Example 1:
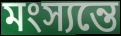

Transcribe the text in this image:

মংস্যন্তে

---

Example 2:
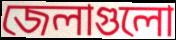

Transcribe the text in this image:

জেলাগুলো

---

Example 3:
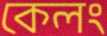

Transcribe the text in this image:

কেলং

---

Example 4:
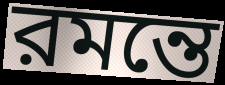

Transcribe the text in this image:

রমন্তে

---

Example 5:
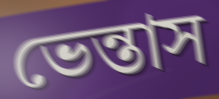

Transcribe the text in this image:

ভেন্তাস